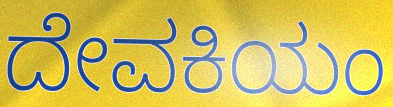
ದೇವಕಿಯಂ